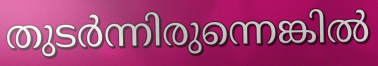
തുടർന്നിരുന്നെങ്കിൽ